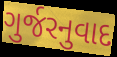
ગુર્જરનુવાદ